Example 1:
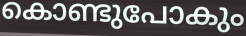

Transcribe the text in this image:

കൊണ്ടുപോകും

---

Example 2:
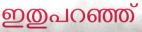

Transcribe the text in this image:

ഇതുപറഞ്ഞ്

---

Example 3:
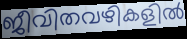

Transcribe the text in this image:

ജീവിതവഴികളിൽ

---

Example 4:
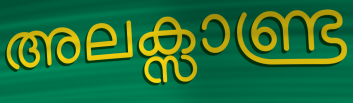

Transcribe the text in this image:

അലക്സാണ്ട്ര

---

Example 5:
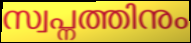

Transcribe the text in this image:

സ്വപ്നത്തിനും